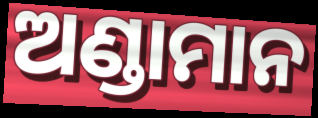
ଅଣ୍ଡାମାନ